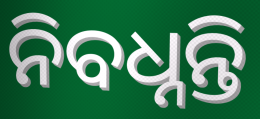
ନିବଧ୍ନନ୍ତି